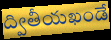
ద్వితీయఖండే